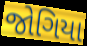
જોગિયા